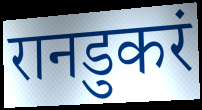
रानडुकरं